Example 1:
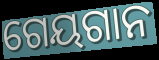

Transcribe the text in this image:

ଗେୟଗାନ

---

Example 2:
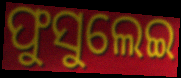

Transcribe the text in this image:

ଫୁସୁଲେଇ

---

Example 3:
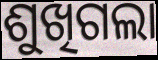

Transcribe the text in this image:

ଶୁଖିଗଲା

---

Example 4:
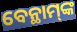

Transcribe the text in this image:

ବେନ୍ଥାମ୍‌ଙ୍କ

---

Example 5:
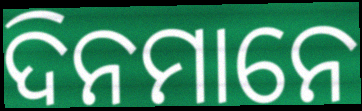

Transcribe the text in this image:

ଦିନମାନେ